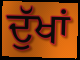
ਦੁੱਖਾਂ